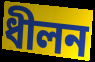
ধীলন